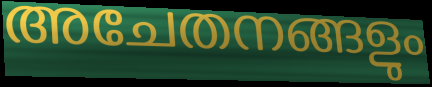
അചേതനങ്ങളും